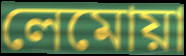
লেমোয়া